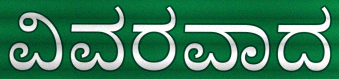
ವಿವರವಾದ